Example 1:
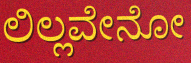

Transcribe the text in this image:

ಲಿಲ್ಲವೇನೋ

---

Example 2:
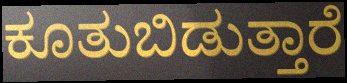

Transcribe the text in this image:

ಕೂತುಬಿಡುತ್ತಾರೆ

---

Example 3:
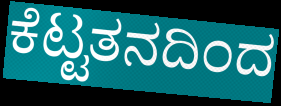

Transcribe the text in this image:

ಕೆಟ್ಟತನದಿಂದ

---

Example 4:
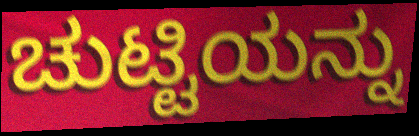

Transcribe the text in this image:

ಚುಟ್ಟಿಯನ್ನು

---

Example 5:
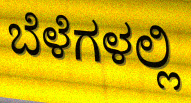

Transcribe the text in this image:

ಬೆಳೆಗಳಲ್ಲಿ